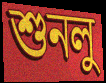
শুনলু